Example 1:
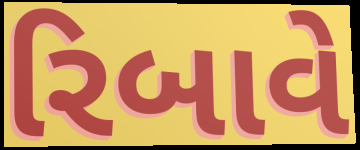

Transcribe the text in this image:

રિબાવે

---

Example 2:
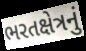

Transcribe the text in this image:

ભરતક્ષેત્રનું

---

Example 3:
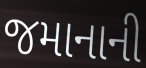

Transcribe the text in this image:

જમાનાની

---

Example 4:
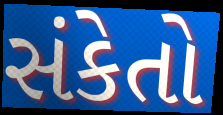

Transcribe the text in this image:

સંકેતો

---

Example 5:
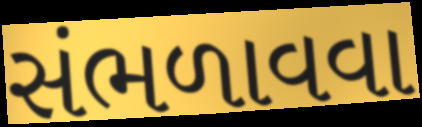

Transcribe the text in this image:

સંભળાવવા